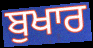
ਬੁਖਾਰ